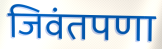
जिवंतपणा